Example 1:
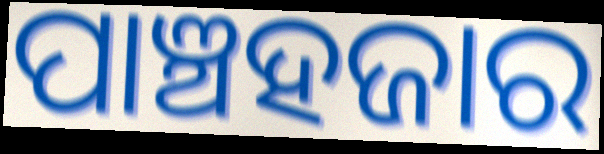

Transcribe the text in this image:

ପାଞ୍ଚହଜାର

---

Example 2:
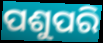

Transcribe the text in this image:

ପଶୁପରି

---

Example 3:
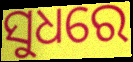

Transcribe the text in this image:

ସୁଧରେ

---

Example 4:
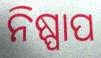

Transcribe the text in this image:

ନିଷ୍ପାପ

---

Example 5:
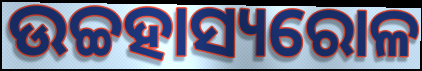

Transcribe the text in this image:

ଉଚ୍ଚହାସ୍ୟରୋଳ